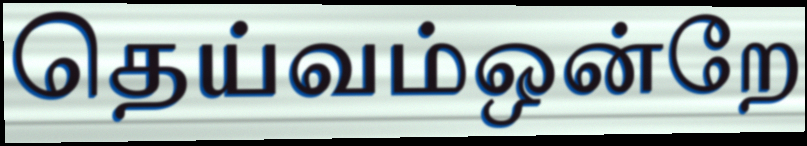
தெய்வம்ஒன்றே